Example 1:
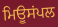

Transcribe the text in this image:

ਮਿਊਸਂਪਲ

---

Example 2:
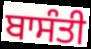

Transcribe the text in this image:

ਬਾਸੰਤੀ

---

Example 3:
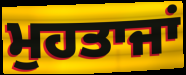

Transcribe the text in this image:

ਮੁਹਤਾਜਾਂ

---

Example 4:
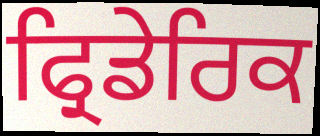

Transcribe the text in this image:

ਫ੍ਰਿਡੇਰਿਕ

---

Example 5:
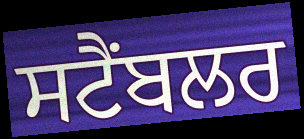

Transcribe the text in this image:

ਸਟੈਂਬਲਰ